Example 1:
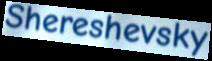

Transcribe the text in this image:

Shereshevsky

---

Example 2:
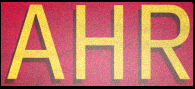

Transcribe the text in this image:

AHR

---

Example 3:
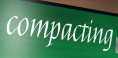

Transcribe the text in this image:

compacting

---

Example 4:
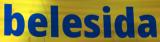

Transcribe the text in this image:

belesida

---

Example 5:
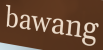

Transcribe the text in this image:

bawang